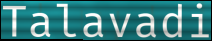
Talavadi